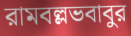
রামবল্লভবাবুর